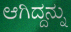
ಆಗಿದ್ದನ್ನು